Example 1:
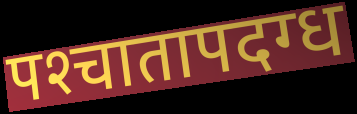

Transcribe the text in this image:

पश्चातापदग्ध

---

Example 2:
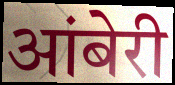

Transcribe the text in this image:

आंबेरी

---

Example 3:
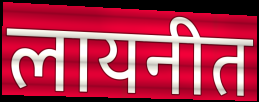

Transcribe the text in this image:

लायनीत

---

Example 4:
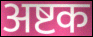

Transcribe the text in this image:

अष्टक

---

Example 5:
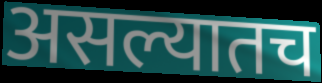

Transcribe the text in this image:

असल्यातच